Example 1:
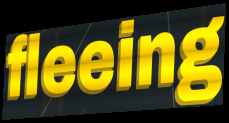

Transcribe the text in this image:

fleeing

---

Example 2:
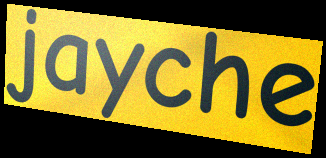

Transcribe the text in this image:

jayche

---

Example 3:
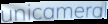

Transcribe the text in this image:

unicameral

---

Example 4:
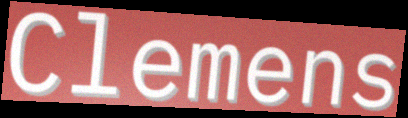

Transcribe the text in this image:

Clemens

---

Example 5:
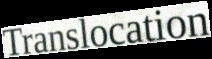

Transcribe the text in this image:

Translocation